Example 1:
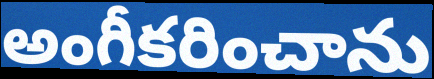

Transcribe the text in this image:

అంగీకరించాను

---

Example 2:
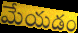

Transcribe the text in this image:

మేయడం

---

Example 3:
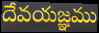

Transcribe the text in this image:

దేవయజ్ఞము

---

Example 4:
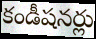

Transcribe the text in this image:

కండీషనర్లు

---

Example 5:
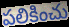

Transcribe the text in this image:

పలికించు